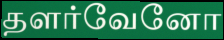
தளர்வேனோ